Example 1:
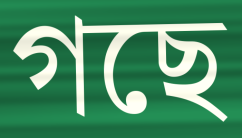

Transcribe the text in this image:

গছে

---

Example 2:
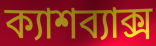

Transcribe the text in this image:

ক্যাশব্যাক্স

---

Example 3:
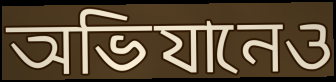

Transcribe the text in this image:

অভিযানেও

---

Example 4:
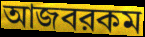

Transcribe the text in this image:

আজবরকম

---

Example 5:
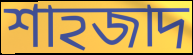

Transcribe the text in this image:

শাহজাদ